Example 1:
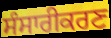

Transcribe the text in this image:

ਸੰਸਾਰੀਕਰਣ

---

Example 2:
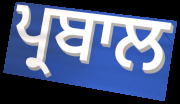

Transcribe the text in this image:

ਪ੍ਰਬਾਲ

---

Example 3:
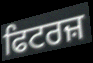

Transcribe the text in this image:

ਫਿਟਰਜ਼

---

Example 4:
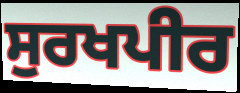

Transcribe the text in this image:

ਸੁਰਖਪੀਰ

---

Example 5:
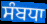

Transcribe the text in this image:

ਸੰਬਧਾ